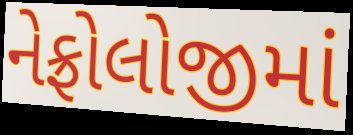
નેફ્રોલોજીમાં